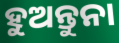
ହୁଅନ୍ତୁନା